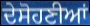
ਦੇਸੋਹਣੀਆਂ